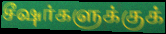
சீஷர்களுக்குக்